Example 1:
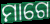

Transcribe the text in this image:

ମାଗେ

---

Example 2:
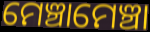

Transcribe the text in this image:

ମେଞ୍ଚାମେଞ୍ଚା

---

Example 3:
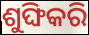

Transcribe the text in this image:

ଶୁଙ୍ଘିକରି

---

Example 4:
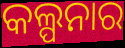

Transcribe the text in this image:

କଲ୍ପନାର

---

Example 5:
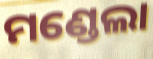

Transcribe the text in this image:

ମଣ୍ଡେଲା